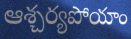
ఆశ్చర్యపోయాం